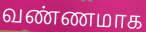
வண்ணமாக